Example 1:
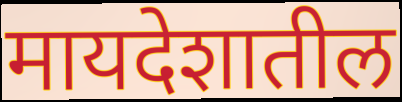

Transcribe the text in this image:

मायदेशातील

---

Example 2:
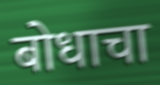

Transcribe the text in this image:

बोधाचा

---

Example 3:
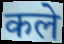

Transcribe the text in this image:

कले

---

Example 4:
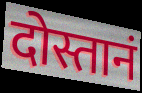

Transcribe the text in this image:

दोस्तानं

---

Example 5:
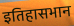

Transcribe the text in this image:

इतिहासभान